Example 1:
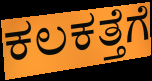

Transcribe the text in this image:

ಕಲಕತ್ತೆಗೆ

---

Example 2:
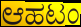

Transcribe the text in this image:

ಆಹಟಂ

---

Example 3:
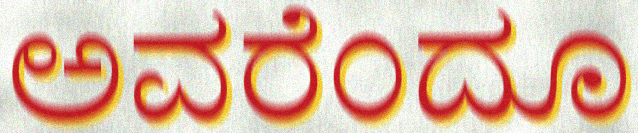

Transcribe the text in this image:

ಅವರೆಂದೂ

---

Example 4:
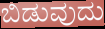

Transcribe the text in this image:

ಬಿಡುವುದು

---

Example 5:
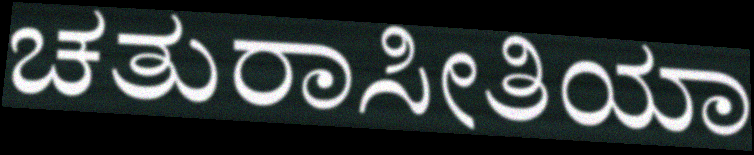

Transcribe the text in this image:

ಚತುರಾಸೀತಿಯಾ